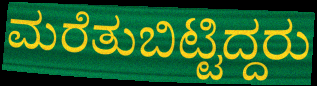
ಮರೆತುಬಿಟ್ಟಿದ್ದರು